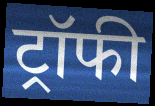
ट्रॉफी